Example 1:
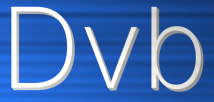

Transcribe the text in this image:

Dvb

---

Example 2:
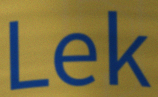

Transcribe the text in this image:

Lek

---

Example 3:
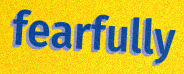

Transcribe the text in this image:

fearfully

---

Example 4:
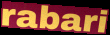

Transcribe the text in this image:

rabari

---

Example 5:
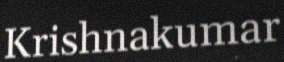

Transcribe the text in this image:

Krishnakumar